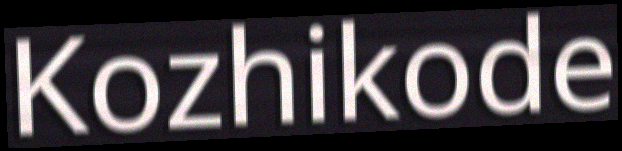
Kozhikode